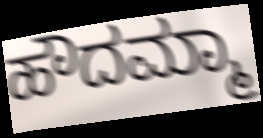
ಹೌದಮ್ಮಾ